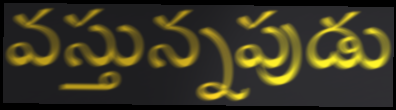
వస్తున్నపుడు